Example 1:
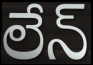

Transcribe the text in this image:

లేన్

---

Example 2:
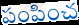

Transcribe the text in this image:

పంపించ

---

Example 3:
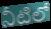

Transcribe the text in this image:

నీటిలో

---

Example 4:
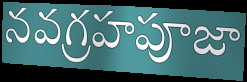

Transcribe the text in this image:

నవగ్రహపూజా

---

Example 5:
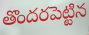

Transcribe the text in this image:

తొందరపెట్టిన